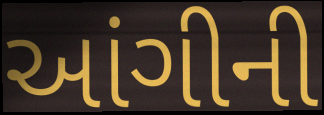
આંગીની